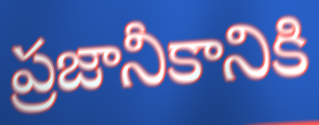
ప్రజానీకానికి